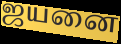
ஜயனை